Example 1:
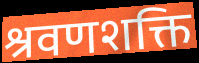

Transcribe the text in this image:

श्रवणशक्ति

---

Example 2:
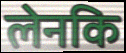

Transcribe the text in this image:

लेनकि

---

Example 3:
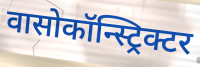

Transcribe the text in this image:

वासोकॉन्स्ट्रिक्टर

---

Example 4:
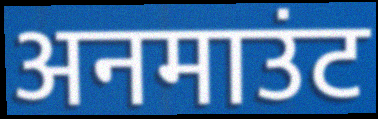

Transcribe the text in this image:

अनमाउंट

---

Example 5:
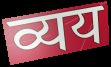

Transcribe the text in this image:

व्यय